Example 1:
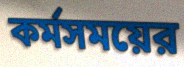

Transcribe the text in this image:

কর্মসময়ের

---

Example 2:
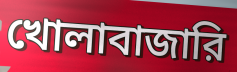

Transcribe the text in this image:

খোলাবাজারি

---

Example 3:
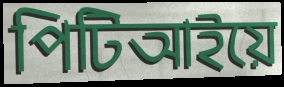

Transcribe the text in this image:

পিটিআইয়ে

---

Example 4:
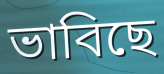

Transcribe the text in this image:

ভাবিছে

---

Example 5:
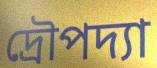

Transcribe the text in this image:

দ্রৌপদ্যা